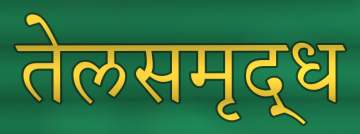
तेलसमृद्ध